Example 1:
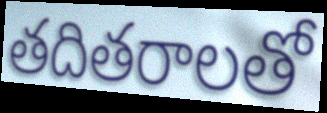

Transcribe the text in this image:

తదితరాలతో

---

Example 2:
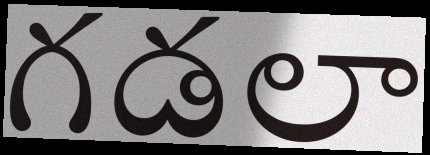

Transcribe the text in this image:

గడలా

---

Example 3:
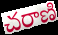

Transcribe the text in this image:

చరాణి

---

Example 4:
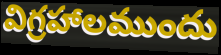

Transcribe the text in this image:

విగ్రహాలముందు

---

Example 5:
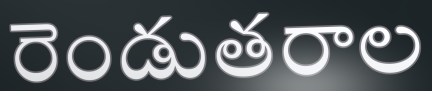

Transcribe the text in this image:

రెండుతరాల